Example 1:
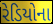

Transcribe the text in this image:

રેડિયોના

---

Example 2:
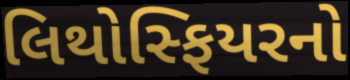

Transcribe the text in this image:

લિથોસ્ફિયરનો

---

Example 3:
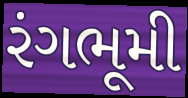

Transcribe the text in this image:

રંગભૂમી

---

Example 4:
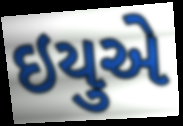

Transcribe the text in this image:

ઇયુએ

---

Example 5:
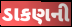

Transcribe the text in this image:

ડાકણની